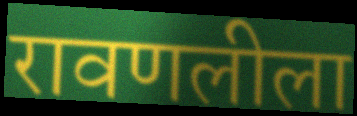
रावणलीला